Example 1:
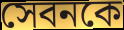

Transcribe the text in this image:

সেবনকে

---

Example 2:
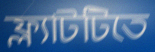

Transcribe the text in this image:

ফ্ল্যাটটিতে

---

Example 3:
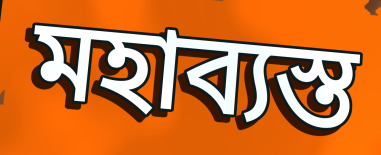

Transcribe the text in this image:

মহাব্যস্ত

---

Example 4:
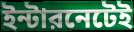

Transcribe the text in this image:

ইন্টারনেটেই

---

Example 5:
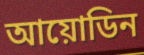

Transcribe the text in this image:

আয়োডিন